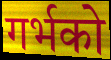
गर्भको